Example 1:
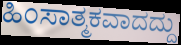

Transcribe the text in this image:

ಹಿಂಸಾತ್ಮಕವಾದದ್ದು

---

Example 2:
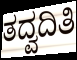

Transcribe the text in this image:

ತದ್ವದಿತಿ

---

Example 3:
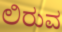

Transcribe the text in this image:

ಲಿರುವ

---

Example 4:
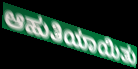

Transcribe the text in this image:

ಆಹುತಿಯಾಯಿತು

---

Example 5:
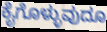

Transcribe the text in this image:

ಕೈಗೊಳ್ಳುವುದೂ